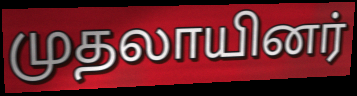
முதலாயினர்